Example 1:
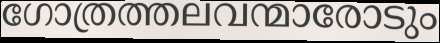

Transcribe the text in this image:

ഗോത്രത്തലവന്മാരോടും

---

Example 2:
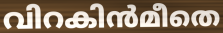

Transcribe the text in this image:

വിറകിൻമീതെ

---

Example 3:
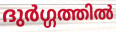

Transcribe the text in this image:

ദുർഗ്ഗത്തിൽ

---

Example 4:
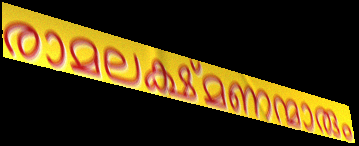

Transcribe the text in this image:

രാമലക്ഷ്മണന്മാരും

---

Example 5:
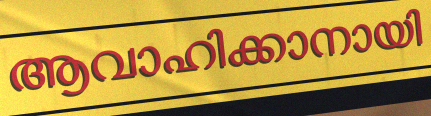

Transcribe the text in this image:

ആവാഹിക്കാനായി